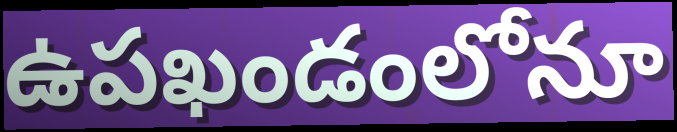
ఉపఖండంలోనూ